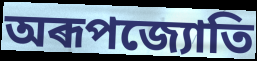
অৰূপজ্যোতি